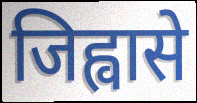
जिह्वासे